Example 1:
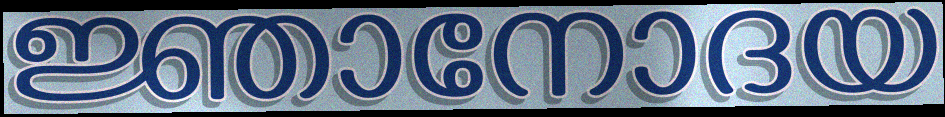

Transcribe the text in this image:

ജ്ഞാനോദയ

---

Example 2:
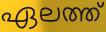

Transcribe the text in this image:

ഏലത്ത്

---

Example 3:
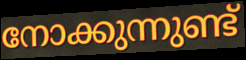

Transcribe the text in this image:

നോക്കുന്നുണ്ട്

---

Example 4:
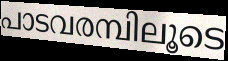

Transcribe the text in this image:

പാടവരമ്പിലൂടെ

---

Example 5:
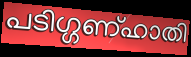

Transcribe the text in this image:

പടിഗ്ഗണ്ഹാതി